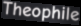
Theophile